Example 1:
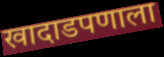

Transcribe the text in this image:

खादाडपणाला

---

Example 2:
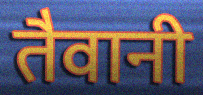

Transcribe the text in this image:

तैवानी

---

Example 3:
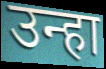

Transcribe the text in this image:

उन्हा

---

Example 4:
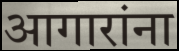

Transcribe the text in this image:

आगारांना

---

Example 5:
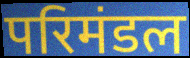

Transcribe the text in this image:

परिमंडल